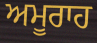
ਅਮੂਰਾਹ